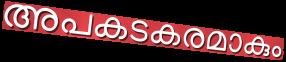
അപകടകരമാകും